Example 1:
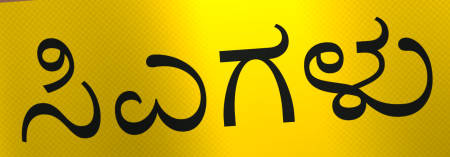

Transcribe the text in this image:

ಸಿಎಗಳು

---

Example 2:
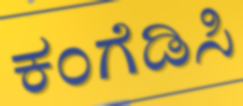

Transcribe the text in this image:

ಕಂಗೆಡಿಸಿ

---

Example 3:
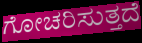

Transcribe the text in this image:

ಗೋಚರಿಸುತ್ತದೆ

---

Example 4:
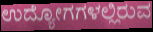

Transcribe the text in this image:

ಉದ್ಯೋಗಗಳಲ್ಲಿರುವ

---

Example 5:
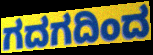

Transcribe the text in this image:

ಗದಗದಿಂದ